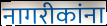
नागरीकांना